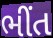
ભીંત